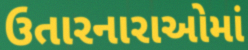
ઉતારનારાઓમાં